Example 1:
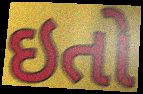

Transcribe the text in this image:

ઇતો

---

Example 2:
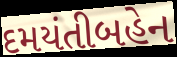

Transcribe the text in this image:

દમયંતીબહેન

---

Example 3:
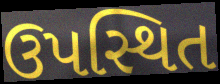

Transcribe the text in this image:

ઉપસ્થિત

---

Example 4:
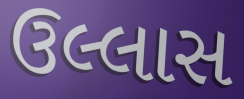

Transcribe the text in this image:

ઉલ્લાસ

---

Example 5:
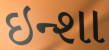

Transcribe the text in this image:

ઇન્શા